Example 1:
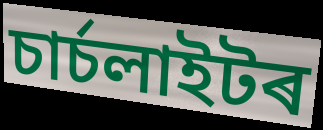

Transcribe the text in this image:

চাৰ্চলাইটৰ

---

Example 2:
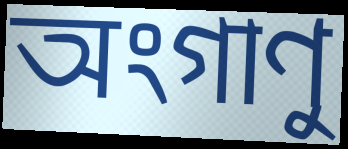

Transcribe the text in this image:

অংগাণু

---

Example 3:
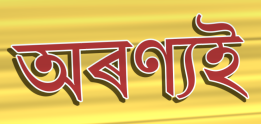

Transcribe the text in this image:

অৰণ্যই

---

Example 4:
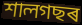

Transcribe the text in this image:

শালগছৰ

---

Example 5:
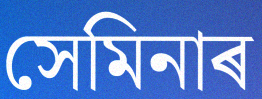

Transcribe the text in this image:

সেমিনাৰ